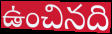
ఉంచినది